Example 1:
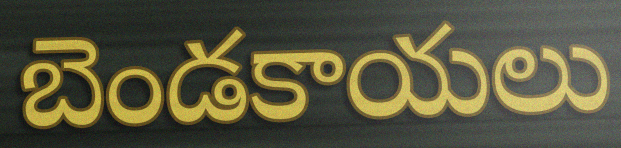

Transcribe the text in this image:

బెండకాయలు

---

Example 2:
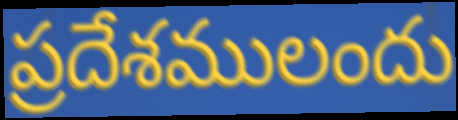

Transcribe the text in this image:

ప్రదేశములందు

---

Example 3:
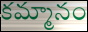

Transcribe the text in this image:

కమ్మానం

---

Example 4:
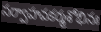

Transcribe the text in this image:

సర్వాహవకర్మశోభినః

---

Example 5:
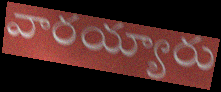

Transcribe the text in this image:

వారయ్యారు